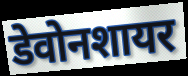
डेवोनशायर